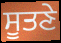
ਸੂਤਣੇ